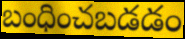
బంధించబడడం